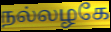
நல்லழகே